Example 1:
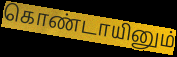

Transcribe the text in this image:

கொண்டாயினும்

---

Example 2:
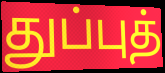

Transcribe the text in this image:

துப்புத்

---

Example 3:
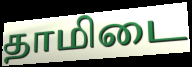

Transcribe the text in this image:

தாமிடை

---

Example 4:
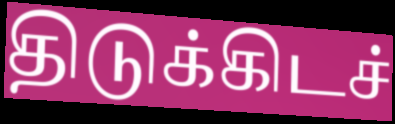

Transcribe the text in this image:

திடுக்கிடச்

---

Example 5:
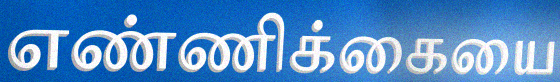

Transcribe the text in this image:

எண்ணிக்கையை